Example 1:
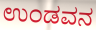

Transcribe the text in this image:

ಉಂಡವನ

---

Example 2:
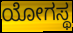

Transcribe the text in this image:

ಯೋಗಸ್ಥ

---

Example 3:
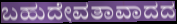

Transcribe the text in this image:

ಬಹುದೇವತಾವಾದದ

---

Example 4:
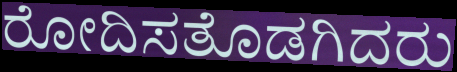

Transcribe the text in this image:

ರೋದಿಸತೊಡಗಿದರು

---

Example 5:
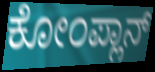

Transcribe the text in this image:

ಕೋಂಪ್ಲಾನ್